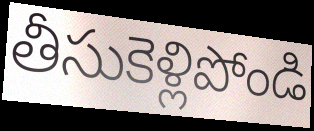
తీసుకెళ్లిపోండి